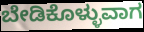
ಬೇಡಿಕೊಳ್ಳುವಾಗ